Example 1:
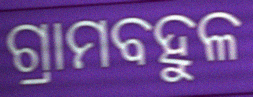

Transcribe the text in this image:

ଗ୍ରାମବହୁଳ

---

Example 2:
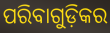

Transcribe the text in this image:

ପରିବାଗୁଡ଼ିକର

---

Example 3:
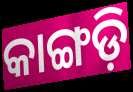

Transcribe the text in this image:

କାଙ୍ଗଡ଼ି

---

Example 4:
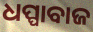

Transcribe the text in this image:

ଧପ୍ପାବାଜ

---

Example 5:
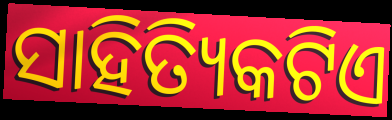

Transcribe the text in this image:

ସାହିତ୍ୟିକଟିଏ